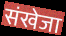
संखेजा